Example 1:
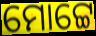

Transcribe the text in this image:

ମୋଟ୍ଟେ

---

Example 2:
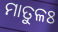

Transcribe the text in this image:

ମାତୁଳଃ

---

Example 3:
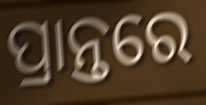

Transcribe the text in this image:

ପ୍ରାନ୍ତରେ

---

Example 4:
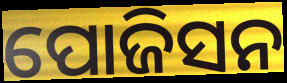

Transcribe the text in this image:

ପୋଜିସନ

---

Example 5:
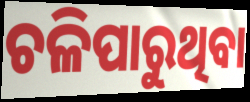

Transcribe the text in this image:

ଚଳିପାରୁଥିବା